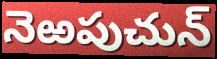
నెఱపుచున్